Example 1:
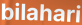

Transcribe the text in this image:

bilahari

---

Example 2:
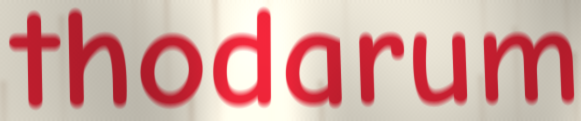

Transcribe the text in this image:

thodarum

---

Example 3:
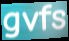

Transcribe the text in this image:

gvfs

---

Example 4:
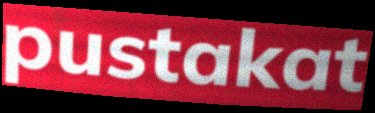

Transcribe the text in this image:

pustakat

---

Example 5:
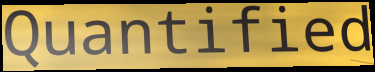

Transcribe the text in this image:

Quantified